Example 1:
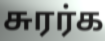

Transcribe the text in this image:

சுரர்க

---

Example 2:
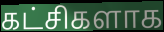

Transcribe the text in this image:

கட்சிகளாக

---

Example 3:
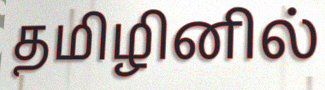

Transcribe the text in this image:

தமிழினில்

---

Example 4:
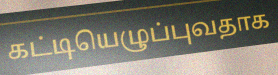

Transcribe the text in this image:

கட்டியெழுப்புவதாக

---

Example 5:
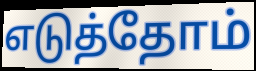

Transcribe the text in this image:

எடுத்தோம்